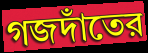
গজদাঁতের